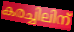
കരച്ചിലിന്